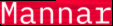
Mannar